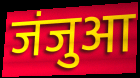
जंजुआ